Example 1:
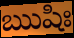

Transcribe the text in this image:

ఋషిః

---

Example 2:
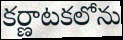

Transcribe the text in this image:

కర్ణాటకలోను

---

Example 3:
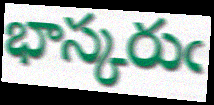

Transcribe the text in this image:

భాస్కరుఁ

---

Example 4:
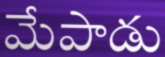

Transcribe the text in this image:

మేపాడు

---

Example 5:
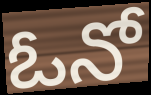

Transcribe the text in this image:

ఓనో